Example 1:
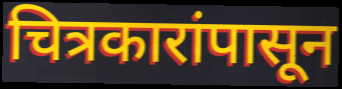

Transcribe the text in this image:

चित्रकारांपासून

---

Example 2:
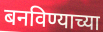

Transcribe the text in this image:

बनविण्याच्या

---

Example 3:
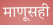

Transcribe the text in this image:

माणूसही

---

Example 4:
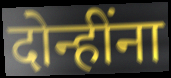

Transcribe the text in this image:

दोन्हींना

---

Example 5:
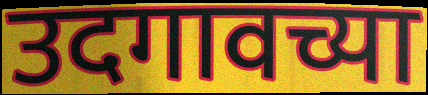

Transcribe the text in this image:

उदगावच्या